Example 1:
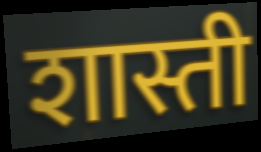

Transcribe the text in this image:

शास्ती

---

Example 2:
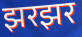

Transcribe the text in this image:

झरझर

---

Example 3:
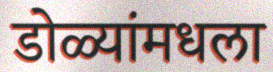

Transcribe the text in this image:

डोळ्यांमधला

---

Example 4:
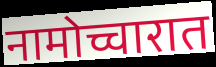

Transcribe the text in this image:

नामोच्चारात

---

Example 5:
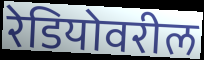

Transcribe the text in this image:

रेडियोवरील